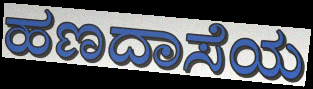
ಹಣದಾಸೆಯ